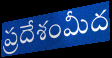
ప్రదేశంమీద